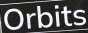
Orbits